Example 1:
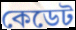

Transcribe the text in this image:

কেডেট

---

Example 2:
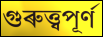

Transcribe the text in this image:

গুৰুত্ত্বপূৰ্ণ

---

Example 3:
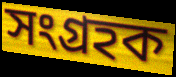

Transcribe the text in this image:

সংগ্ৰহক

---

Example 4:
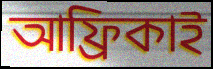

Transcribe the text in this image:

আফ্ৰিকাই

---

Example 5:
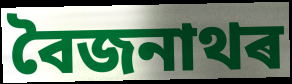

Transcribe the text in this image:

বৈজনাথৰ